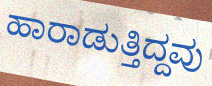
ಹಾರಾಡುತ್ತಿದ್ದವು